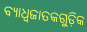
ବ୍ୟାଧ୍ଵଜାତକଗୁଡ଼ିକ